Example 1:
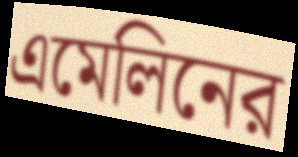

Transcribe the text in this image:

এমেলিনের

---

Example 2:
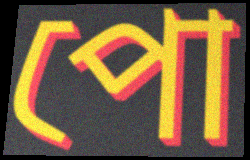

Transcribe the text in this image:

পো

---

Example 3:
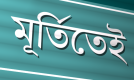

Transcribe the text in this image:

মূর্তিতেই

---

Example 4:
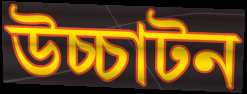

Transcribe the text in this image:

উচ্চাটন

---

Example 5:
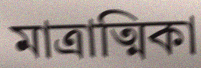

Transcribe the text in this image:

মাত্রাত্মিকা